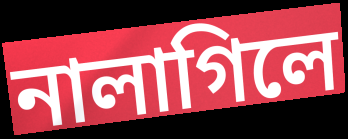
নালাগিলে